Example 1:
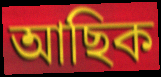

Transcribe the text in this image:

আছিক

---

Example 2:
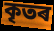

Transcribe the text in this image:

কৃতৰ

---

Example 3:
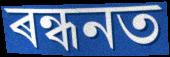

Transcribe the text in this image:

ৰন্ধনত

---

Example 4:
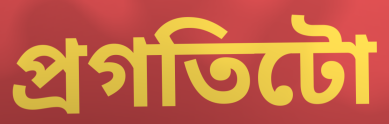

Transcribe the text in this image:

প্ৰগতিটো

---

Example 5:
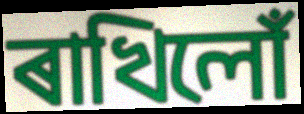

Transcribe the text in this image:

ৰাখিলোঁ